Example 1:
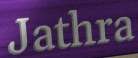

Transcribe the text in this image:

Jathra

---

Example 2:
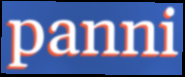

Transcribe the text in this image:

panni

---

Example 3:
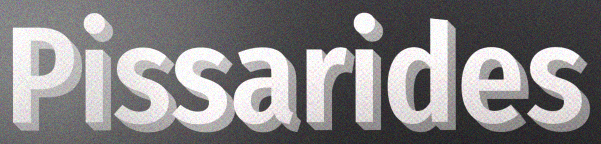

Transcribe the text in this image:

Pissarides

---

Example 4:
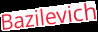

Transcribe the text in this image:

Bazilevich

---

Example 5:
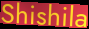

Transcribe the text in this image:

Shishila